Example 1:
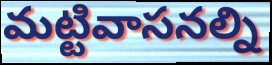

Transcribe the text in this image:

మట్టివాసనల్ని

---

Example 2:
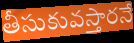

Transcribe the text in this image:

తీసుకువస్తారనే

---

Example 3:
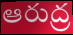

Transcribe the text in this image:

ఆరుద్ర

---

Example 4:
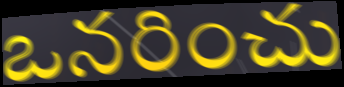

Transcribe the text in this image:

ఒనరించు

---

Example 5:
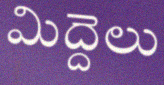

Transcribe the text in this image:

మిద్దెలు